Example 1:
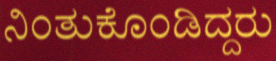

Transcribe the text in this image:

ನಿಂತುಕೊಂಡಿದ್ದರು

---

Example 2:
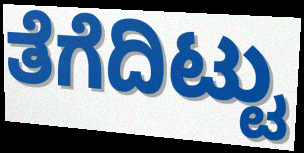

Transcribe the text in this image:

ತೆಗೆದಿಟ್ಟು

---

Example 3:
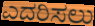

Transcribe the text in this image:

ಎದರಿಸಲು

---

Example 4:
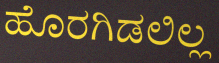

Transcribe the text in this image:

ಹೊರಗಿಡಲಿಲ್ಲ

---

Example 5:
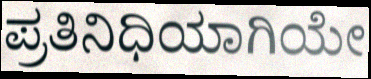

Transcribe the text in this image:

ಪ್ರತಿನಿಧಿಯಾಗಿಯೇ